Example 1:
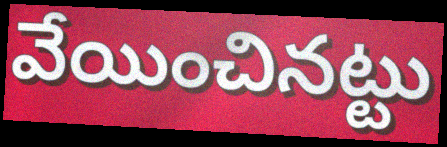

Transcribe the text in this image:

వేయించినట్టు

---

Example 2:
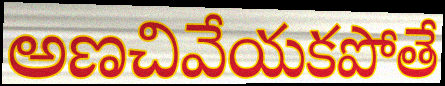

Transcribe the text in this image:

అణచివేయకపోతే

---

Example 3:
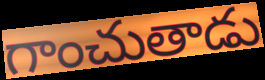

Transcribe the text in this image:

గాంచుతాడు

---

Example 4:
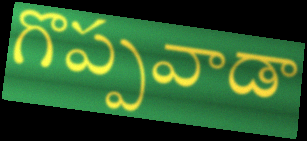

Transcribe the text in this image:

గొప్పవాడా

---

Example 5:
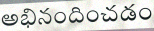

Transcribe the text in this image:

అభినందించడం